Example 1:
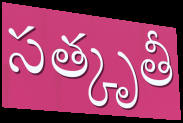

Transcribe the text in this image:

సత్కృతీ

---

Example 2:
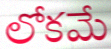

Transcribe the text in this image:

లోకమే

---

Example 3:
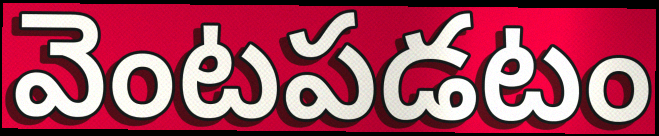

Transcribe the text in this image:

వెంటపడటం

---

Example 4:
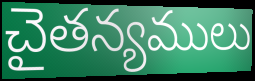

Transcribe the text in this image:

చైతన్యములు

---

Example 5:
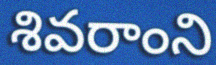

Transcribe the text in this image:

శివరాంని